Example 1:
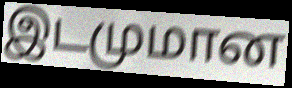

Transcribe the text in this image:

இடமுமான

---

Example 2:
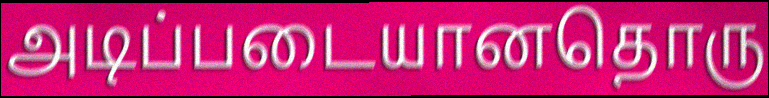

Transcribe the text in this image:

அடிப்படையானதொரு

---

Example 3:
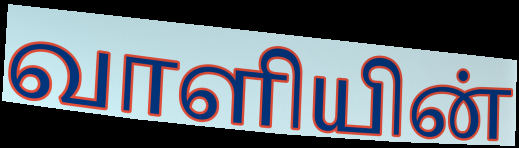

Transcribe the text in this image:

வாளியின்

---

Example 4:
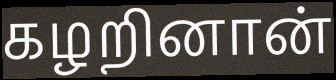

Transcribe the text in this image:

கழறினான்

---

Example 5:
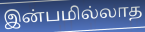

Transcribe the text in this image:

இன்பமில்லாத